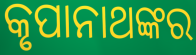
କୃପାନାଥଙ୍କର